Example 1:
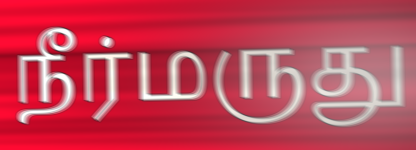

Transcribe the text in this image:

நீர்மருது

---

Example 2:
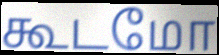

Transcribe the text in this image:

கூடமோ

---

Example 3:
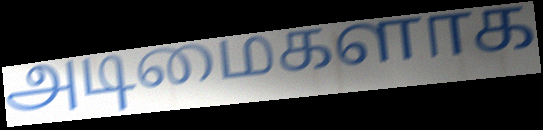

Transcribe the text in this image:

அடிமைகளாக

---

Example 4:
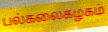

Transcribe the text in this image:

பல்கலைகழகம்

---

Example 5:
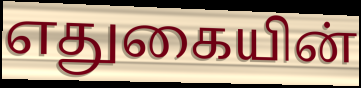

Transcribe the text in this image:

எதுகையின்